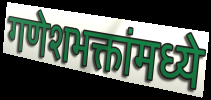
गणेशभक्तांमध्ये